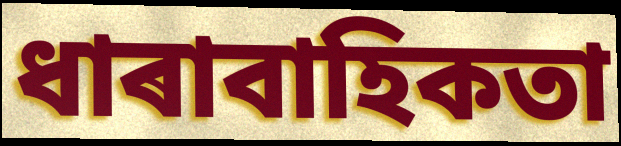
ধাৰাবাহিকতা